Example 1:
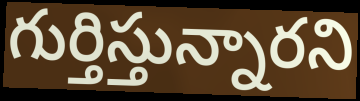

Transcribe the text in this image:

గుర్తిస్తున్నారని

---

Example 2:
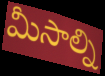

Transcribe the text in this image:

మీసాల్ని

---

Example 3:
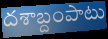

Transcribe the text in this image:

దశాబ్దంపాటు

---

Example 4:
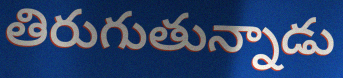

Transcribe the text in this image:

తిరుగుతున్నాడు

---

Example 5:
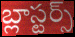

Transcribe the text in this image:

బ్లాస్టర్స్